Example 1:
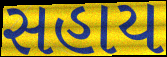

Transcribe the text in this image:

સહાય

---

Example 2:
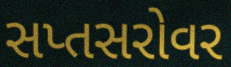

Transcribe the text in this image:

સપ્તસરોવર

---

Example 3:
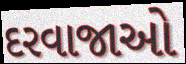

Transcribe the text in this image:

દરવાજાઓ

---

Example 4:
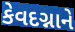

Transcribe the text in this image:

કેવદગ્નાને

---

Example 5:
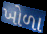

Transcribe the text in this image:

ખોળા